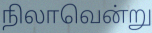
நிலாவென்று